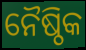
ନୈଷ୍ଠିକ